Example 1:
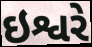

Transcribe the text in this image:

ઇશ્વરે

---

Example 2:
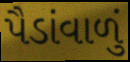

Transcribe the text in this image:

પૈડાંવાળું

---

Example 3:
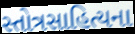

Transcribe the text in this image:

સ્તોત્રસાહિત્યના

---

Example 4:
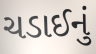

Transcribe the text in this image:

ચડાઈનું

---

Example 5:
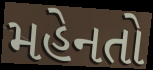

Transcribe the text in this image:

મહેનતો